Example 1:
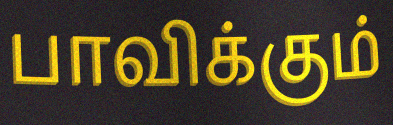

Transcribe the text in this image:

பாவிக்கும்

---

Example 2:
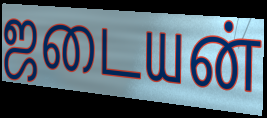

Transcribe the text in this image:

ஜடையன்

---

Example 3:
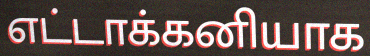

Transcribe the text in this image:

எட்டாக்கனியாக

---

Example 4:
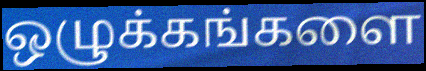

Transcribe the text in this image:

ஒழுக்கங்களை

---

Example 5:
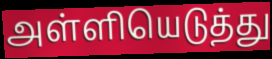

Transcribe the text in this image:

அள்ளியெடுத்து